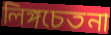
লিঙ্গচেতনা